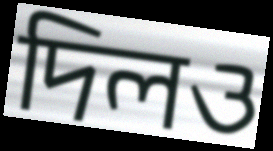
দিলও